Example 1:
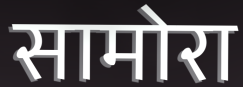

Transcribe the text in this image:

सामोरा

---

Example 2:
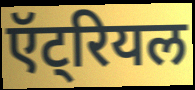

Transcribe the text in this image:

ऍट्रियल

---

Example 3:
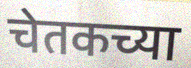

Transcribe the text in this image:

चेतकच्या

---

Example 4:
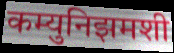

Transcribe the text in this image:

कम्युनिझमशी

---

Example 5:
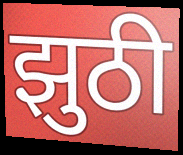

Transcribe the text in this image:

झुठी